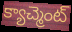
క్యాచ్మెంట్